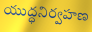
యుద్ధనిర్వహణ